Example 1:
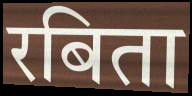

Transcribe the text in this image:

रबिता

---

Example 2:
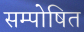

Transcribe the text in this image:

सम्पोषित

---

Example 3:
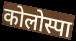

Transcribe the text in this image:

कोलोस्पा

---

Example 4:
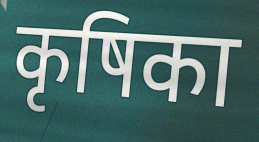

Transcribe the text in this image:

कृषिका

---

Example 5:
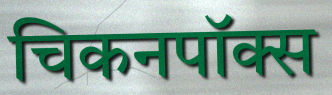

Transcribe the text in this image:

चिकनपॉक्स